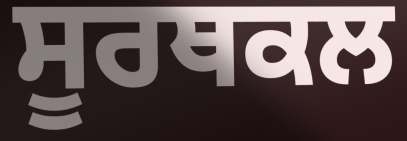
ਸੂਰਥਕਲ